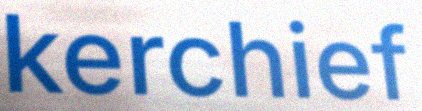
kerchief